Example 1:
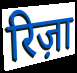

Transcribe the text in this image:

रिज़ा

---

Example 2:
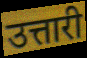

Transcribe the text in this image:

उत्तारी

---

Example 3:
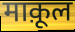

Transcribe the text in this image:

माक़ूल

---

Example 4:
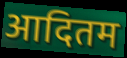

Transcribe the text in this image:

आदितम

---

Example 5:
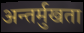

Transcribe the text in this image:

अन्तर्मुखता